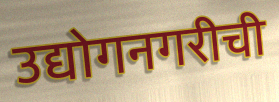
उद्योगनगरीची